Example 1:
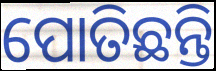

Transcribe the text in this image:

ପୋତିଛନ୍ତି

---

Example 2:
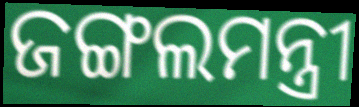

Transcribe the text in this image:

ଜଙ୍ଗଲମନ୍ତ୍ରୀ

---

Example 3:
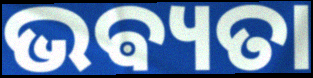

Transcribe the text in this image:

ଭଵ୍ୟତା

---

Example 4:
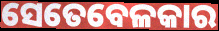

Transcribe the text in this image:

ସେତେବେଳକାର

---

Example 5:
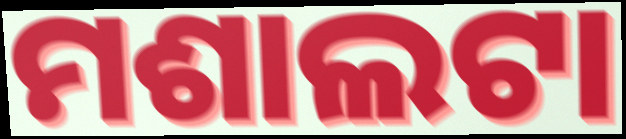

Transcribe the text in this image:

ମଶାଲଟା